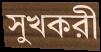
সুখকরী